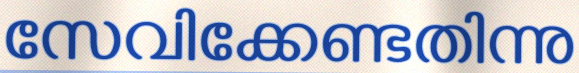
സേവിക്കേണ്ടതിന്നു